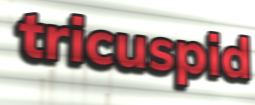
tricuspid